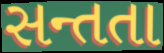
સન્તતા